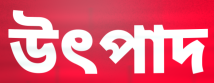
উৎপাদ